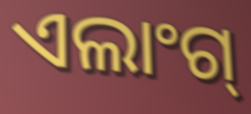
ଏଲାଂଗ୍